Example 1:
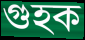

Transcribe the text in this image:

গুহক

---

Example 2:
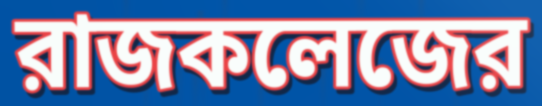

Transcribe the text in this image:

রাজকলেজের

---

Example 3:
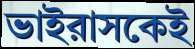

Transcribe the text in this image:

ভাইরাসকেই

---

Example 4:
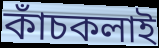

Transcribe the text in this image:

কাঁচকলাই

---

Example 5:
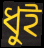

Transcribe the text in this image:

ধুই